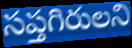
సప్తగిరులని